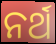
ନର୍ଥ